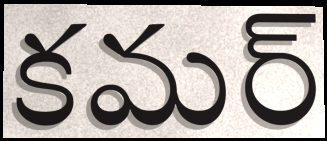
కమర్